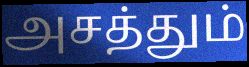
அசத்தும்